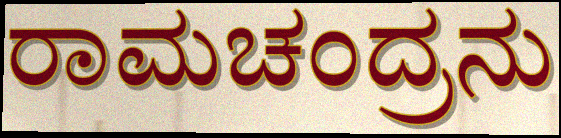
ರಾಮಚಂದ್ರನು